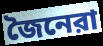
জৈনেরা